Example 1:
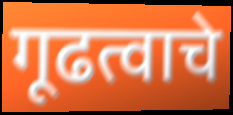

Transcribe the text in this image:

गूढत्वाचे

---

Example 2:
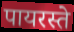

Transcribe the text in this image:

पायरस्ते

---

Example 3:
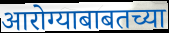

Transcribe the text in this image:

आरोग्याबाबतच्या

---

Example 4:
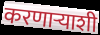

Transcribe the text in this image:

करणाऱ्याशी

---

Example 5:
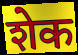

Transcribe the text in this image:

शेक